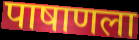
पाषाणला